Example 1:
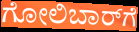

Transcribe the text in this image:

ಗೋಲಿಬಾರ್‌ಗೆ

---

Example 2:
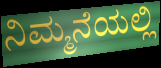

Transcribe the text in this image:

ನಿಮ್ಮನೆಯಲ್ಲಿ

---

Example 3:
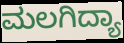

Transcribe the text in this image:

ಮಲಗಿದ್ಯಾ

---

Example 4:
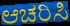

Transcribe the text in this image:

ಆಚರಿಸಿ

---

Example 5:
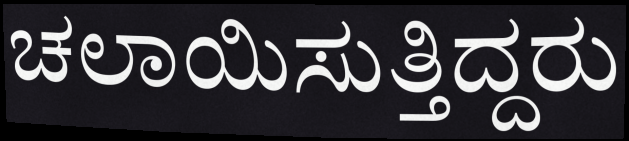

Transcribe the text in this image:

ಚಲಾಯಿಸುತ್ತಿದ್ದರು